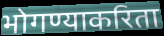
भोगण्याकरिता